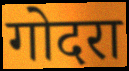
गोदरा